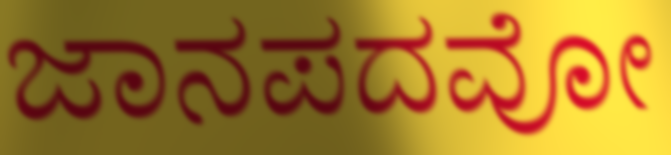
ಜಾನಪದವೋ